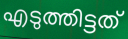
എടുത്തിട്ടത്